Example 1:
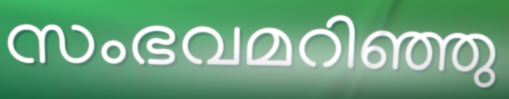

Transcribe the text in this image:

സംഭവമറിഞ്ഞു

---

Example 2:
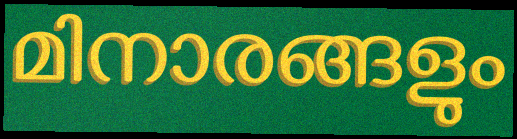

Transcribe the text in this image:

മിനാരങ്ങളും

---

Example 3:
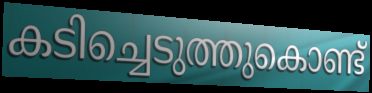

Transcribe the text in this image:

കടിച്ചെടുത്തുകൊണ്ട്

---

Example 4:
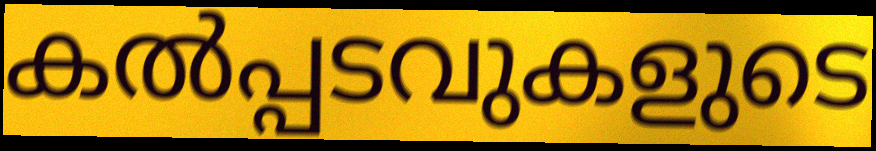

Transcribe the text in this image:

കൽപ്പടവുകളുടെ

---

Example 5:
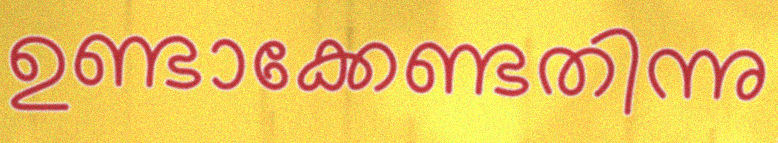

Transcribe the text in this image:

ഉണ്ടാക്കേണ്ടതിന്നു